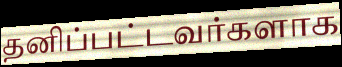
தனிப்பட்டவர்களாக